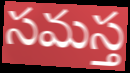
సమస్త